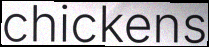
chickens